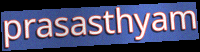
prasasthyam